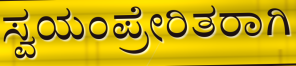
ಸ್ವಯಂಪ್ರೇರಿತರಾಗಿ